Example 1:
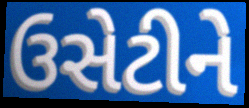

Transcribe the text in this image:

ઉસેટીને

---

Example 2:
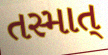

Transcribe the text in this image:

તસ્માત્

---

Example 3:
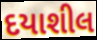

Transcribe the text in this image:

દયાશીલ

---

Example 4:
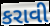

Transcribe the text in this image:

કરાવી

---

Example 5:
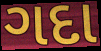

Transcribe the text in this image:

ગદા